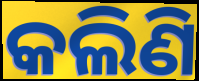
କଲିଣି